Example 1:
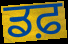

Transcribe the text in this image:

ਡਫ਼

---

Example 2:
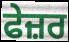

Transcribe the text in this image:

ਫੇਜ਼ਰ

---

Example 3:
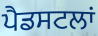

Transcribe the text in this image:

ਪੈਡਸਟਲਾਂ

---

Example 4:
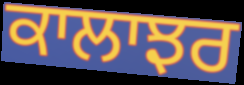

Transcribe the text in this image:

ਕਾਲਾਝਰ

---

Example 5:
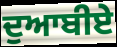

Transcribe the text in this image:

ਦੁਆਬੀਏ